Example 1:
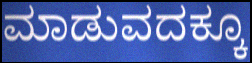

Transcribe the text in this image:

ಮಾಡುವದಕ್ಕೂ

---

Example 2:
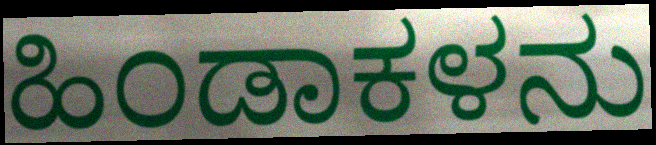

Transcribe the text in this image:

ಹಿಂಡಾಕಳನು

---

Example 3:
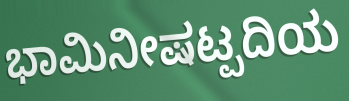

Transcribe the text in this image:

ಭಾಮಿನೀಷಟ್ಪದಿಯ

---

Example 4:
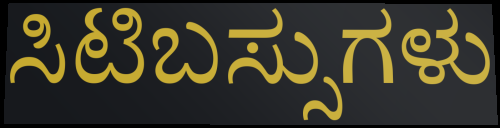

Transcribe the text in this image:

ಸಿಟಿಬಸ್ಸುಗಳು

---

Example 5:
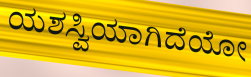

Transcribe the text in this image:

ಯಶಸ್ವಿಯಾಗಿದೆಯೋ